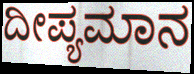
ದೀಪ್ಯಮಾನ